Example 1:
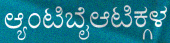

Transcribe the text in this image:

ಆ್ಯಂಟಿಬೈಆಟಿಕ್ಗಳ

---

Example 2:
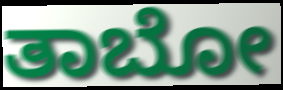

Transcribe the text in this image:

ತಾಬೋ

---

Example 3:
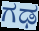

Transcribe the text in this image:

ಗಢ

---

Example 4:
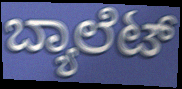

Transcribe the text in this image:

ಬ್ಯಾಲೆಟ್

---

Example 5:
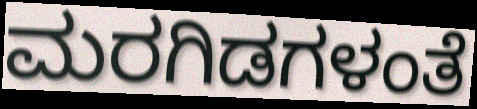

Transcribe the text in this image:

ಮರಗಿಡಗಳಂತೆ